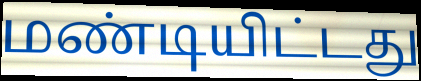
மண்டியிட்டது